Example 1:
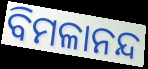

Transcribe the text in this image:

ବିମଳାନନ୍ଦ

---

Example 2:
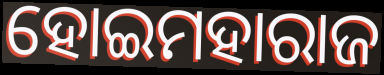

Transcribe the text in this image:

ହୋଇମହାରାଜ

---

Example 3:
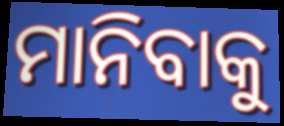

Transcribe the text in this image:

ମାନିବାକୁ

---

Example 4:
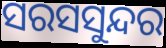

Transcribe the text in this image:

ସରସସୁନ୍ଦର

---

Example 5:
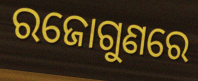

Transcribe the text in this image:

ରଜୋଗୁଣରେ